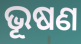
ଭୂଷଣ